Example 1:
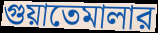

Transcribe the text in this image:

গুয়াতেমালার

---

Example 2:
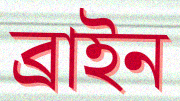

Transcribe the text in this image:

ব্রাইন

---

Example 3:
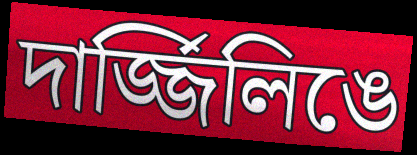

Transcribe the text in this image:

দার্জ্জিলিঙে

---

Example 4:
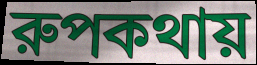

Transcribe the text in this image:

রুপকথায়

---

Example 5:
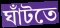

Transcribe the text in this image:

ঘাঁটতে